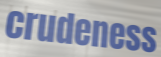
crudeness